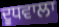
ਦੂਧਵਾਲਾ